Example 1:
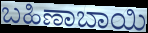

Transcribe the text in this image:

ಬಹಿಣಾಬಾಯಿ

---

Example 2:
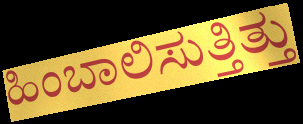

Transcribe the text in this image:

ಹಿಂಬಾಲಿಸುತ್ತಿತ್ತು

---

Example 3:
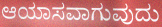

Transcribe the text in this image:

ಆಯಾಸವಾಗುವುದು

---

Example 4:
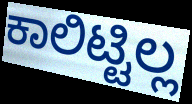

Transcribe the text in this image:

ಕಾಲಿಟ್ಟಿಲ್ಲ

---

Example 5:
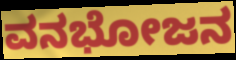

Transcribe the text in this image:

ವನಭೋಜನ